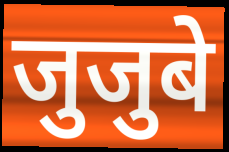
जुजुबे